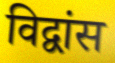
विद्वांस